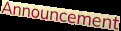
Announcement